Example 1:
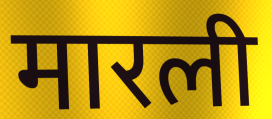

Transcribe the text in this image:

मारली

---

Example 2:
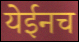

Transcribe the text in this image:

येईनच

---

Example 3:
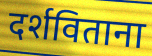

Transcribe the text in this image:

दर्शविताना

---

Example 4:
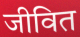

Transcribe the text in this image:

जीवित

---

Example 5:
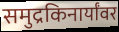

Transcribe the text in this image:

समुद्रकिनार्यांवर